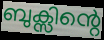
ബുക്സിന്റെ